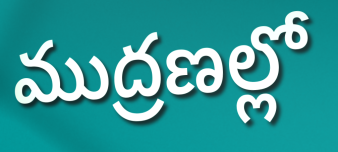
ముద్రణల్లో